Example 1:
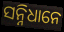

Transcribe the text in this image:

ସନ୍ନିଧାନେ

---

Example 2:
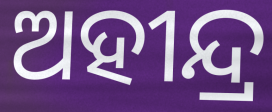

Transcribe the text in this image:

ଅହୀନ୍ଦ୍ର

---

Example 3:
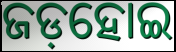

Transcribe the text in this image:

ଜଡ଼ହୋଇ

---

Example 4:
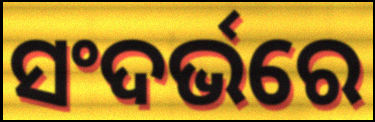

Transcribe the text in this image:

ସଂଦର୍ଭରେ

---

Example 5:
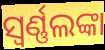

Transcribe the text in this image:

ସ୍ବର୍ଣ୍ଣଲଙ୍କା